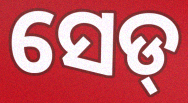
ସେଡ୍